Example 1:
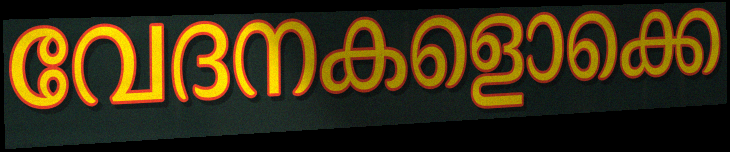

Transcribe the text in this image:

വേദനകളൊക്കെ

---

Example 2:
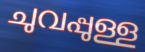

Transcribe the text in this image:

ചുവപ്പുള്ള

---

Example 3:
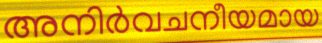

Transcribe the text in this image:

അനിർവചനീയമായ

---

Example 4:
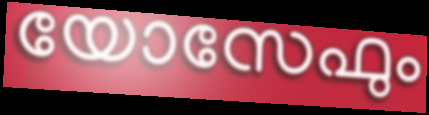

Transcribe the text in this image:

യോസേഫും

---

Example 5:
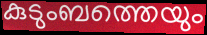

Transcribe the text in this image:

കുടുംബത്തെയും